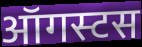
ऑगस्टस